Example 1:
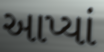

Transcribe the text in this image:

આપ્યાં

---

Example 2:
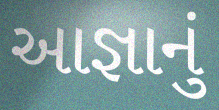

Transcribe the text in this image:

આજ્ઞાનું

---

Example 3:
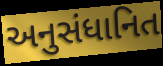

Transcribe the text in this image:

અનુસંધાનિત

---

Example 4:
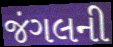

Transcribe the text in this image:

જંગલની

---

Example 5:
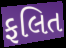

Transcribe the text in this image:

ફલિત